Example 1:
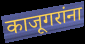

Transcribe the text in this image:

काजूगरांना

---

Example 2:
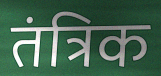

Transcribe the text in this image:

तंत्रिक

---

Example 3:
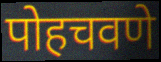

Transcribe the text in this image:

पोहचवणे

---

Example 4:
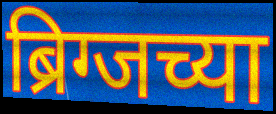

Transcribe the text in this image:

ब्रिग्जच्या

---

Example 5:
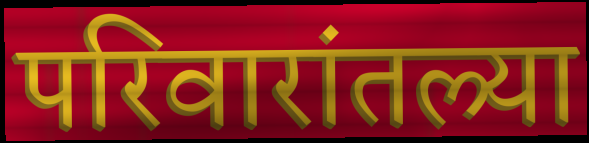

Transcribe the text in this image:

परिवारांतल्या